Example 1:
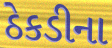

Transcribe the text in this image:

ઠેકડીના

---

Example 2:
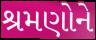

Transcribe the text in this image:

શ્રમણોને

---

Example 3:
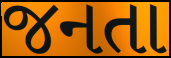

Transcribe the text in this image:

જનતા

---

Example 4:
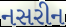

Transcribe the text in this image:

નસરીન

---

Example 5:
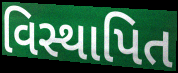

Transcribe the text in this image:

વિસ્થાપિત